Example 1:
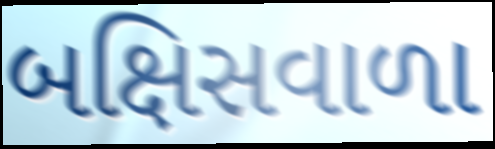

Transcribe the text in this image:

બક્ષિસવાળા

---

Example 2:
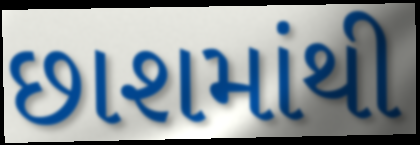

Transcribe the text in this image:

છાશમાંથી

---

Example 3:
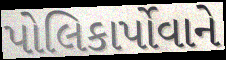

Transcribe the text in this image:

પોલિકાર્પોવાને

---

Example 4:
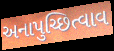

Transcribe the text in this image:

અનાપુચ્છિત્વાવ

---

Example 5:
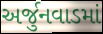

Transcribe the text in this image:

અર્જુનવાડમાં